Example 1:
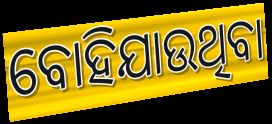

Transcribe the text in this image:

ବୋହିଯାଉଥିବା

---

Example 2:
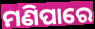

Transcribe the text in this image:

ମଣିପାରେ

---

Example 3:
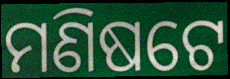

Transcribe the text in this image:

ମଣିଷଟେ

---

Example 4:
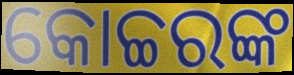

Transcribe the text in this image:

କୋଚ୍ଚରଙ୍କ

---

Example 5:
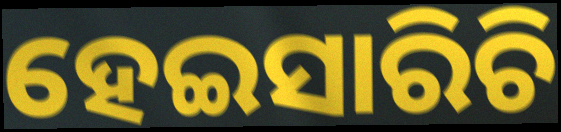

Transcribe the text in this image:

ହେଇସାରିଚି